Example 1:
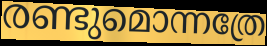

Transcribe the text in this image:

രണ്ടുമൊന്നത്രേ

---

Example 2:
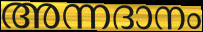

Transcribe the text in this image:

അന്നദാനം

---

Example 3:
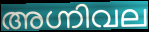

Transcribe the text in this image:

അഗ്നിവല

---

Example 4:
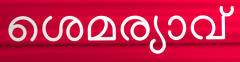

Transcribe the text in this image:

ശെമര്യാവ്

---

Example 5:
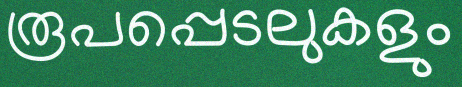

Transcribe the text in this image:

രൂപപ്പെടലുകളും